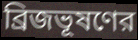
ব্রিজভূষণের